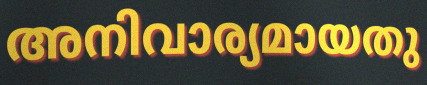
അനിവാര്യമായതു